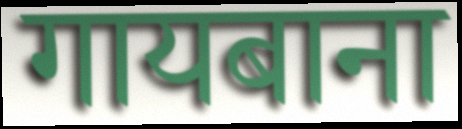
गायबाना